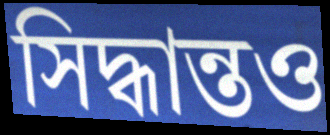
সিদ্ধান্তও